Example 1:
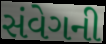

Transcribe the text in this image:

સંવેગની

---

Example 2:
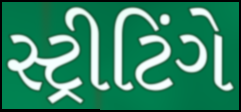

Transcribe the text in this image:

સ્ટ્રીટિંગે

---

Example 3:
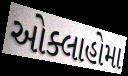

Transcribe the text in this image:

ઓક્લાહોમા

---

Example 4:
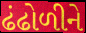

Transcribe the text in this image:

ઢંઢોળીને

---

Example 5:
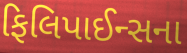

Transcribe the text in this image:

ફિલિપાઈન્સના